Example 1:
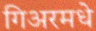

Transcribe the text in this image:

गिअरमधे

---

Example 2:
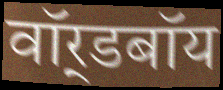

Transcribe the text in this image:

वॉर्डबॉय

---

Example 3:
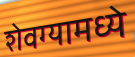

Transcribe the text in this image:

शेवग्यामध्ये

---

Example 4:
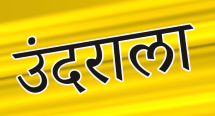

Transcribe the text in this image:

उंदराला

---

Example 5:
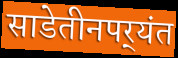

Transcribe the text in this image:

साडेतीनपर्यंत